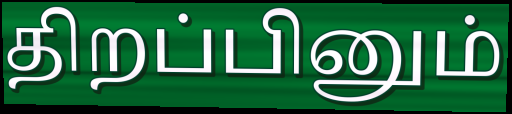
திறப்பினும்